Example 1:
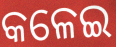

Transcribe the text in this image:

କଳେଇ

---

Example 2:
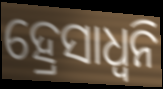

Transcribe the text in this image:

ହ୍ରେସାଧ୍ୱନି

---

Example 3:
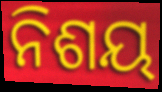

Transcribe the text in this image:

ନିଶୟ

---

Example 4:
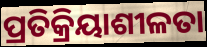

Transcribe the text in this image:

ପ୍ରତିକ୍ରିୟାଶୀଳତା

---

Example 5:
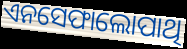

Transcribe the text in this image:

ଏନସେଫାଲୋପାଥି